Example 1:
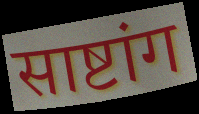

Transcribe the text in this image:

साष्टांग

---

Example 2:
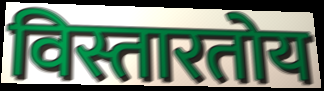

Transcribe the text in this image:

विस्तारतोय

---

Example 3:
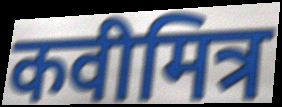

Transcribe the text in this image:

कवीमित्र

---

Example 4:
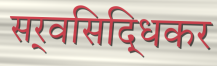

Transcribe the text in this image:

सर्वसिद्धिकर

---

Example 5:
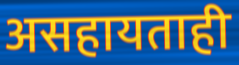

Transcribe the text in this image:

असहायताही